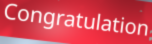
Congratulation